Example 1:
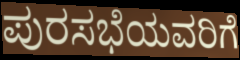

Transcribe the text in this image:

ಪುರಸಭೆಯವರಿಗೆ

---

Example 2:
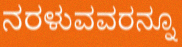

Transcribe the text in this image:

ನರಳುವವರನ್ನೂ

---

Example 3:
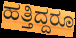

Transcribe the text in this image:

ಹತ್ತಿದ್ದರೂ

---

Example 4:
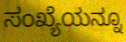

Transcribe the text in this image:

ಸಂಖ್ಯೆಯನ್ನೂ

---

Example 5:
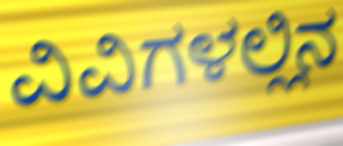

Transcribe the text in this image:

ವಿವಿಗಳಲ್ಲಿನ